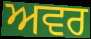
ਅਵਰ